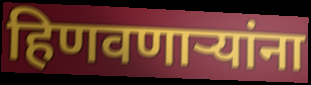
हिणवणाऱ्यांना